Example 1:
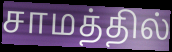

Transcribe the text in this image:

சாமத்தில்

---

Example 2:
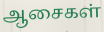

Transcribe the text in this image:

ஆசைகள்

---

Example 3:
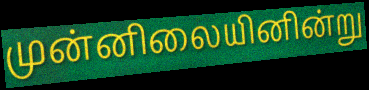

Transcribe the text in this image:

முன்னிலையினின்று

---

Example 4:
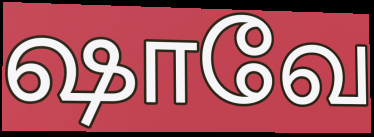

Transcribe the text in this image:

ஷாவே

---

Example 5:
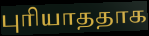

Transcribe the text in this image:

புரியாததாக